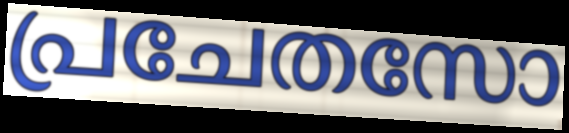
പ്രചേതസോ